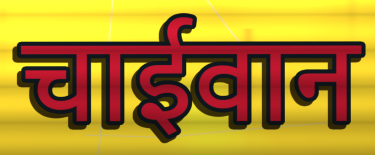
चाईवान